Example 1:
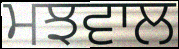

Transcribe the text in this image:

ਮਝਵਾਲ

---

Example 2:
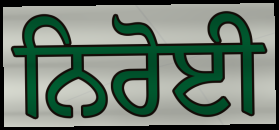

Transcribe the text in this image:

ਨਿਰੋਈ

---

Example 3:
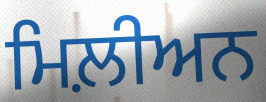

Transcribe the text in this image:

ਮਿਲ਼ੀਅਨ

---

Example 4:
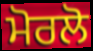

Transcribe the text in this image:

ਮੋਰਲੋ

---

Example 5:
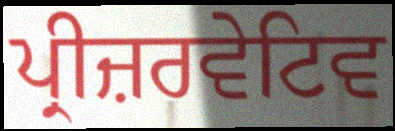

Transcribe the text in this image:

ਪ੍ਰੀਜ਼ਰਵੇਟਿਵ